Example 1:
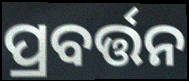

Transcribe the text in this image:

ପ୍ରବର୍ତ୍ତନ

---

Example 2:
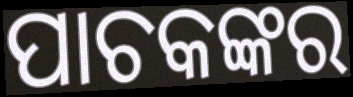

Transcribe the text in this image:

ପାଚକଙ୍କର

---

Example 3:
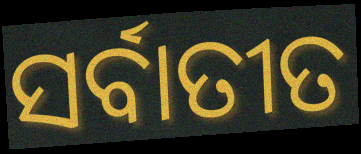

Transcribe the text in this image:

ସର୍ବାତୀତ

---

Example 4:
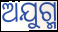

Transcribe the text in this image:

ଅଯୁଗ୍ମ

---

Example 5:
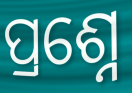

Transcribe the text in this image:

ପ୍ରଶ୍ନେ